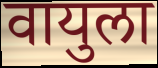
वायुला